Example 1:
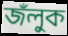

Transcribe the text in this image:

জঁলুক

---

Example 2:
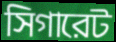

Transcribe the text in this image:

সিগারেট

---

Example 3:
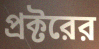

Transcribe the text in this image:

প্রক্টরের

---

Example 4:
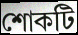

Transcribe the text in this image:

শোকটি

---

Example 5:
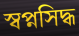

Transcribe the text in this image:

স্বপ্নসিদ্ধ